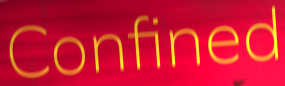
Confined